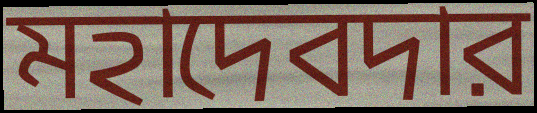
মহাদেবদার